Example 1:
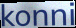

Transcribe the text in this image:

konni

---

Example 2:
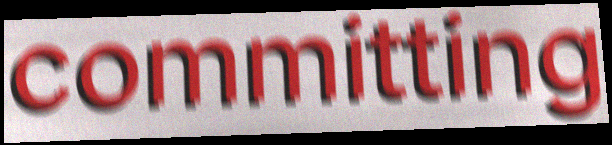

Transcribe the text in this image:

committing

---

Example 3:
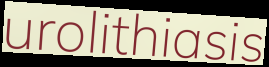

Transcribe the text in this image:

urolithiasis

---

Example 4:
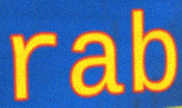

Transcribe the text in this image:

rab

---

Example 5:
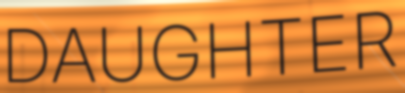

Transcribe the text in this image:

DAUGHTER